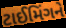
ટાઈમિંગને